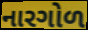
નારગોળ